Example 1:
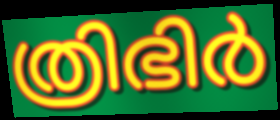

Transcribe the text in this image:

ത്രിഭിർ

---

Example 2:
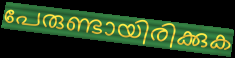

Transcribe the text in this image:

പേരുണ്ടായിരിക്കുക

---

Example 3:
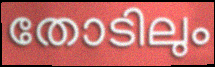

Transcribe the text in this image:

തോടിലും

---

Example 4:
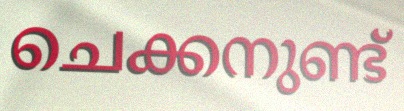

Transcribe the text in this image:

ചെക്കനുണ്ട്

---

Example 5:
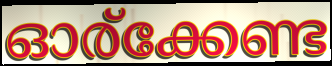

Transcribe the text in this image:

ഓര്ക്കേണ്ട